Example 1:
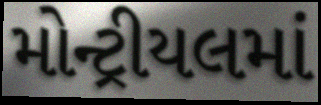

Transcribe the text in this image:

મોન્ટ્રીયલમાં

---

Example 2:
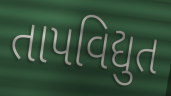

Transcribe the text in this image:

તાપવિદ્યુત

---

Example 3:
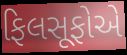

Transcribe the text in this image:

ફિલસૂફોએ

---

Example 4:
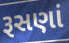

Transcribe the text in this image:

રૂસણાં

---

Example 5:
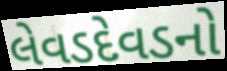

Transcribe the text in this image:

લેવડદેવડનો